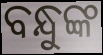
ବନ୍ଧୁଙ୍କ